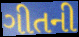
ગીતની